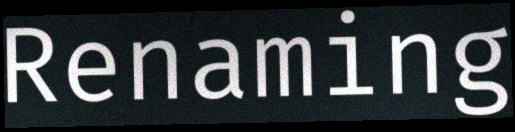
Renaming